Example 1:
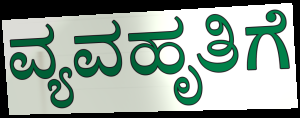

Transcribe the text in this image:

ವ್ಯವಹೃತಿಗೆ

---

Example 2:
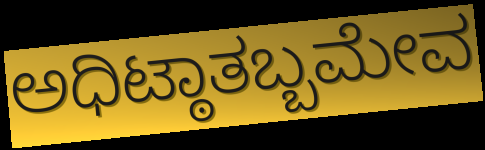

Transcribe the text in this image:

ಅಧಿಟ್ಠಾತಬ್ಬಮೇವ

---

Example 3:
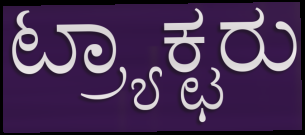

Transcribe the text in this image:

ಟ್ರ್ಯಾಕ್ಟರು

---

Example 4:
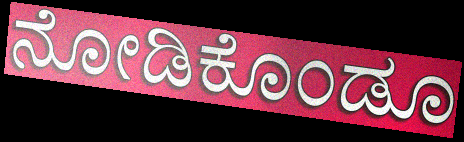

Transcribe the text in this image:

ನೋಡಿಕೊಂಡೂ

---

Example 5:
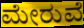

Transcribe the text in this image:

ಮೇರುವೆ